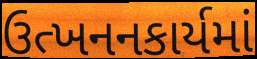
ઉત્ખનનકાર્યમાં